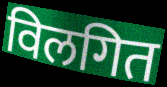
विलगित